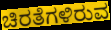
ಚಿರತೆಗಳಿರುವ